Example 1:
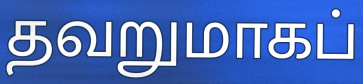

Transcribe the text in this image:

தவறுமாகப்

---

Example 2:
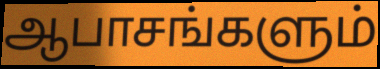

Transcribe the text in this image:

ஆபாசங்களும்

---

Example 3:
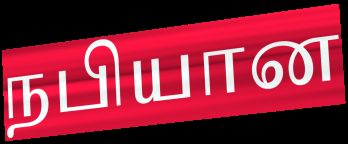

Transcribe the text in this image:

நபியான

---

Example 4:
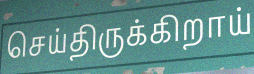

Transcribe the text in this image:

செய்திருக்கிறாய்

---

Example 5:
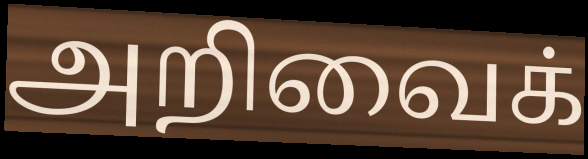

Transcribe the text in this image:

அறிவைக்